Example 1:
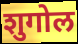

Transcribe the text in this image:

शुगोल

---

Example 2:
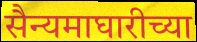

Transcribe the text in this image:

सैन्यमाघारीच्या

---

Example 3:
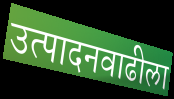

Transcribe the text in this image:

उत्पादनवाढीला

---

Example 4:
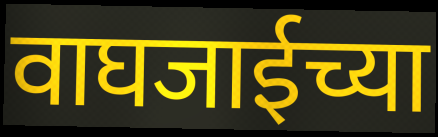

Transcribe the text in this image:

वाघजाईच्या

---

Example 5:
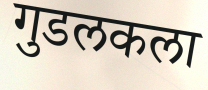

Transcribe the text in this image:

गुडलकला